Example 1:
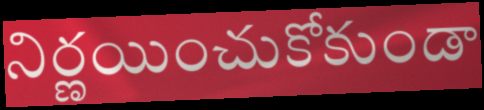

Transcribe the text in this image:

నిర్ణయించుకోకుండా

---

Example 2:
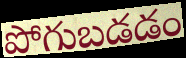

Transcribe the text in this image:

పోగుబడడం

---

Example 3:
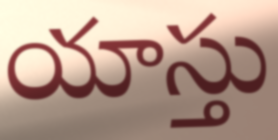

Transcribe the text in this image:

యాస్తు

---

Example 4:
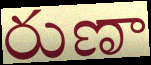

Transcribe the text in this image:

రుణా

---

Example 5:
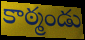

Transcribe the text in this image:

కాఠ్మండు